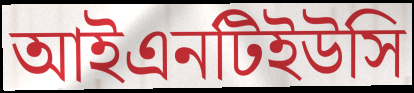
আইএনটিইউসি